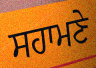
ਸਹਾਮਣੇ